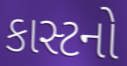
કાસ્ટનો